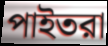
পাইতরা